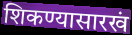
शिकण्यासारखं